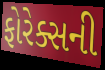
ફોરેક્સની